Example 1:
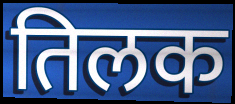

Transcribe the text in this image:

तिलक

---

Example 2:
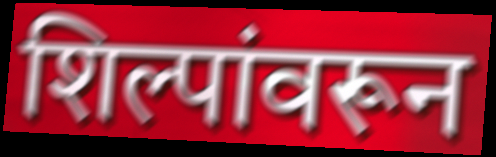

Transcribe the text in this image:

शिल्पांवरून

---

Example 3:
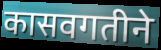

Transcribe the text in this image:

कासवगतीने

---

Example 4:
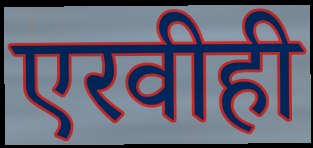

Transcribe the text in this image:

एरवीही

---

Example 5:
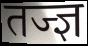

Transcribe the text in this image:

तज्‍ज्ञ